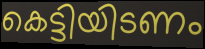
കെട്ടിയിടണം